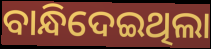
ବାନ୍ଧିଦେଇଥିଲା